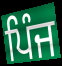
ਪਿੰਜ